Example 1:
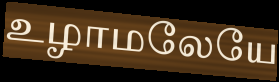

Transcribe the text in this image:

உழாமலேயே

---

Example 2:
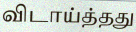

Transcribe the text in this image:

விடாய்த்தது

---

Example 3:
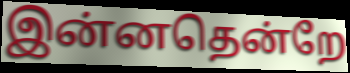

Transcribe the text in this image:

இன்னதென்றே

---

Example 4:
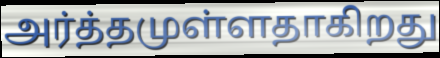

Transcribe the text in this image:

அர்த்தமுள்ளதாகிறது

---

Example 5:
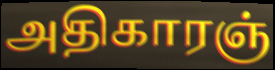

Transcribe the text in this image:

அதிகாரஞ்